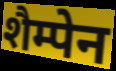
शैम्पेन